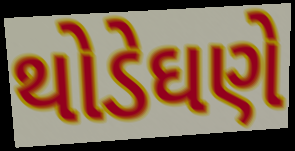
થોડેઘણે